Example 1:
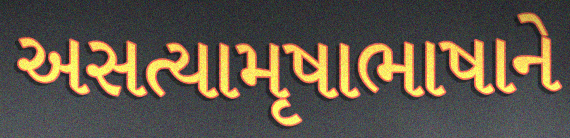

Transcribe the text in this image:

અસત્યામૃષાભાષાને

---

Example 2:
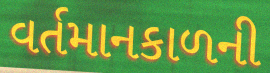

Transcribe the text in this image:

વર્તમાનકાળની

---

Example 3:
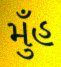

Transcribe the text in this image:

મુઁહ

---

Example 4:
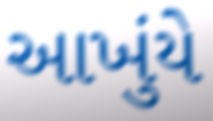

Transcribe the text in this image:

આખુંયે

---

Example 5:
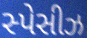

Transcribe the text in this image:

સ્પેસીઝ